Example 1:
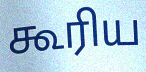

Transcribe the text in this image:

கூரிய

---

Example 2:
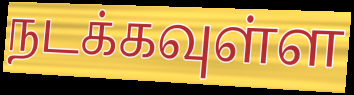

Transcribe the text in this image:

நடக்கவுள்ள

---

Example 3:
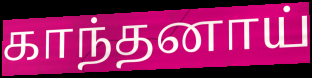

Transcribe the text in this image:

காந்தனாய்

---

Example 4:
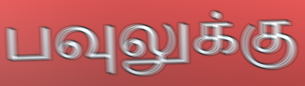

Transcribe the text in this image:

பவுலுக்கு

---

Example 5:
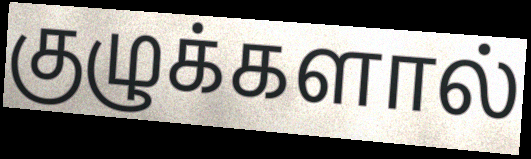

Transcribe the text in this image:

குழுக்களால்